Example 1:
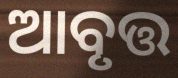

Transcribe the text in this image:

ଆବୃତ୍ତ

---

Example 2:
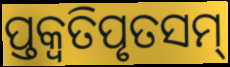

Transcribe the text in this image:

ପ୍ତକ୍ଵତିପୃତସମ୍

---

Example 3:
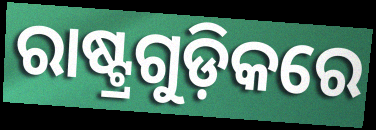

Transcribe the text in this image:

ରାଷ୍ଟ୍ରଗୁଡ଼ିକରେ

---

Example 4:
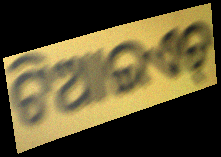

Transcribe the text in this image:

ଟିଆଇଏଚ୍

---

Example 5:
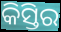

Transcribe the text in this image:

କିସ୍ତିର